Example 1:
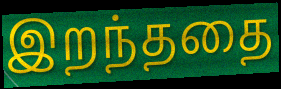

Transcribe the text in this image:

இறந்ததை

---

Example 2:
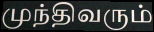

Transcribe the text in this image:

முந்திவரும்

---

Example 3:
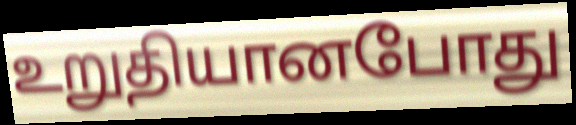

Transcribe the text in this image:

உறுதியானபோது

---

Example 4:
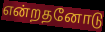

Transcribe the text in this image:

என்றதனோடு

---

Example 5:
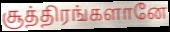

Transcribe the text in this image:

சூத்திரங்களானே